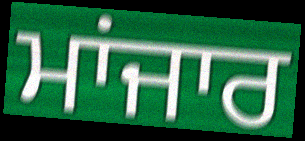
ਮਾਂਜਾਰ